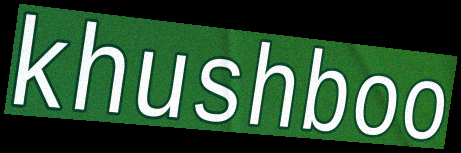
khushboo